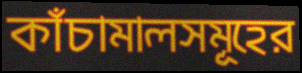
কাঁচামালসমূহের